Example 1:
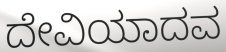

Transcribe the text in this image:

ದೇವಿಯಾದವ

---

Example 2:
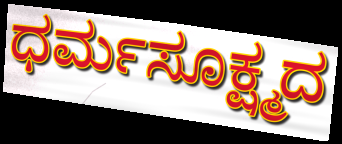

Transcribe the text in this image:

ಧರ್ಮಸೂಕ್ಷ್ಮದ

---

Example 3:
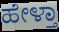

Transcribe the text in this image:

ಹೇಳ್ತಾ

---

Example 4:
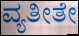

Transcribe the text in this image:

ವ್ಯತೀತೇ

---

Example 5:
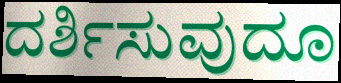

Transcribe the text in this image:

ದರ್ಶಿಸುವುದೂ